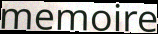
memoire